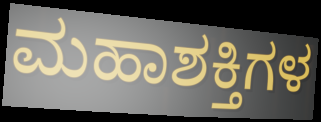
ಮಹಾಶಕ್ತಿಗಳ